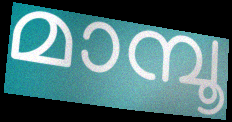
മാമ്പൂ